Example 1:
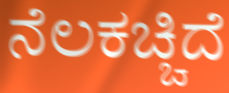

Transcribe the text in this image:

ನೆಲಕಚ್ಚಿದೆ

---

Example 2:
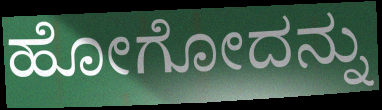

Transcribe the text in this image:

ಹೋಗೋದನ್ನು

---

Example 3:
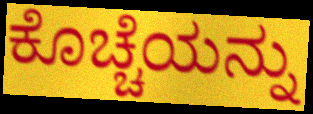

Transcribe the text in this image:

ಕೊಚ್ಚೆಯನ್ನು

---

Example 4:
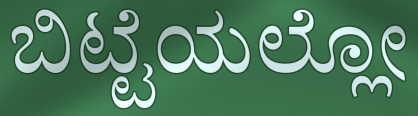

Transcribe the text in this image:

ಬಿಟ್ಟೆಯಲ್ಲೋ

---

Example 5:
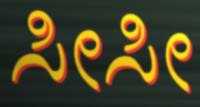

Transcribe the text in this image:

ಸೀಸೀ